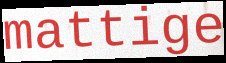
mattige